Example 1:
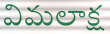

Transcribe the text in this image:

విమలాక్ష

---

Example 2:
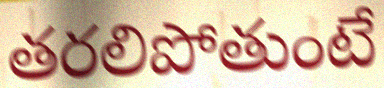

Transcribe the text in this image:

తరలిపోతుంటే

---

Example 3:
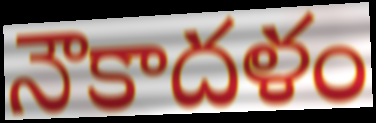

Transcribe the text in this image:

నౌకాదళం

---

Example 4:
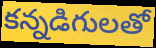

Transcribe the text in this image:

కన్నడిగులతో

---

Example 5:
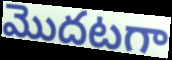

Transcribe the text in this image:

మొదటగా